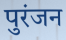
पुरंजन